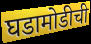
घडामोडीची